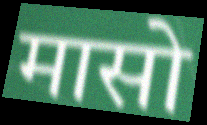
मासो